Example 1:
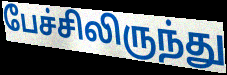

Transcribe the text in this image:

பேச்சிலிருந்து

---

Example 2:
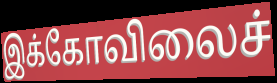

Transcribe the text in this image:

இக்கோவிலைச்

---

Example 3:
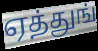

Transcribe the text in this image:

ஏத்துங்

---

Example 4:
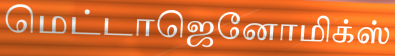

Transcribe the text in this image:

மெட்டாஜெனோமிக்ஸ்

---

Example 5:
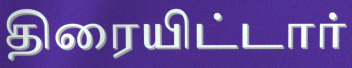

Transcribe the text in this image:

திரையிட்டார்